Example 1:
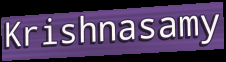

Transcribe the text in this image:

Krishnasamy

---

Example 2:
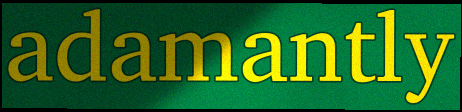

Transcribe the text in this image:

adamantly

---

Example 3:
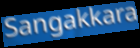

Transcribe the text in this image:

Sangakkara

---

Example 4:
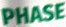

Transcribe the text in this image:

PHASE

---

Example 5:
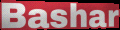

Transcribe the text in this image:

Bashar